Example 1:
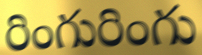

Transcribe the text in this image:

రింగురింగు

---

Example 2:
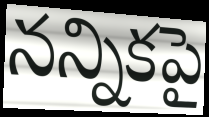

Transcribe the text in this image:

నన్నికపై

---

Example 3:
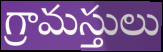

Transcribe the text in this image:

గ్రామస్తులు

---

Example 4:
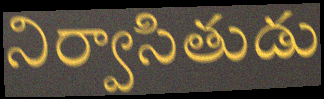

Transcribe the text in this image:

నిర్వాసితుడు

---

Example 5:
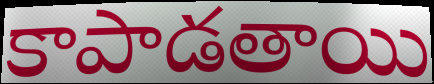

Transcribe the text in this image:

కాపాడతాయి